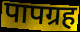
पापग्रह